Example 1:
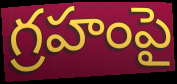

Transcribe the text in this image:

గ్రహంపై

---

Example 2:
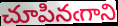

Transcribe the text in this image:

చూపినఁగాని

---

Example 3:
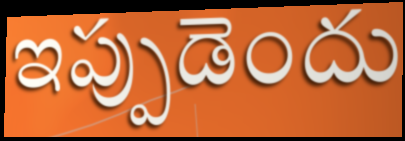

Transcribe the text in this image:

ఇప్పుడెందు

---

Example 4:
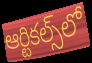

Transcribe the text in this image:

ఆర్టికల్స్‌లో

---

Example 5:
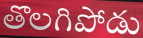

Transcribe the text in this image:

తొలగిపోడు